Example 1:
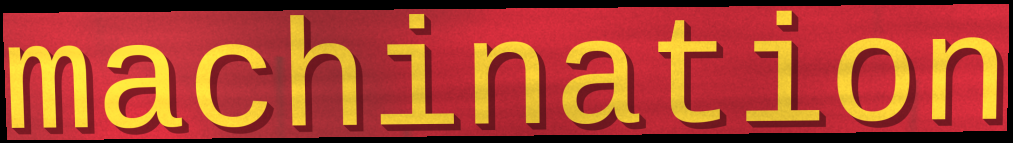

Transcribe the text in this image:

machination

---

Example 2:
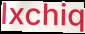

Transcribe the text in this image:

Ixchiq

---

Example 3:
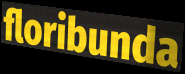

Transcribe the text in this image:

floribunda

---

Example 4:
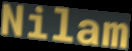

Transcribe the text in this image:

Nilam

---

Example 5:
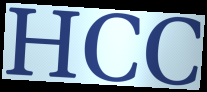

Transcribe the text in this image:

HCC